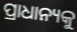
ପ୍ରାଧାନ୍ୟକୁ